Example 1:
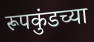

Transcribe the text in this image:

रूपकुंडच्या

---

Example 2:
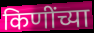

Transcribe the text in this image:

किणींच्या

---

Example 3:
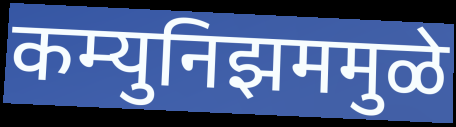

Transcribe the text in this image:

कम्युनिझममुळे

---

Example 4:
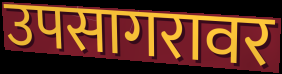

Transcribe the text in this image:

उपसागरावर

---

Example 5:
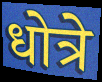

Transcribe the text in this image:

धोत्रे